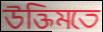
উক্তিমতে